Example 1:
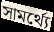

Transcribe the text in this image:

সামর্থ্যে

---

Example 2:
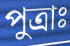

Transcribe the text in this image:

পুত্রাঃ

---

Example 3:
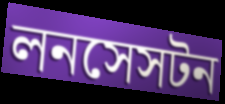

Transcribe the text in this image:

লনসেসটন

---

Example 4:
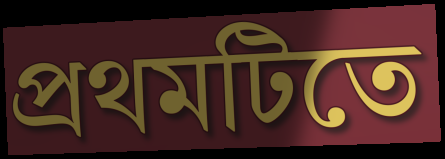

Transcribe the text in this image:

প্রথমটিতে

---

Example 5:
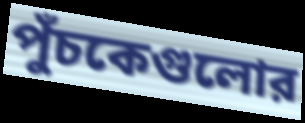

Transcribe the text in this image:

পুঁচকেগুলোর